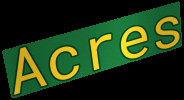
Acres